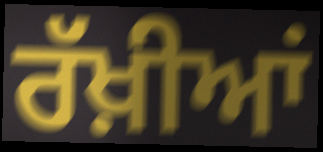
ਰੱਖ਼ੀਆਂ